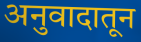
अनुवादातून